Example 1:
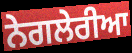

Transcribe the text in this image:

ਨੇਗਲੇਰੀਆ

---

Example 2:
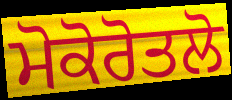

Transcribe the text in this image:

ਮੋਕੋਰੋਤਲੋ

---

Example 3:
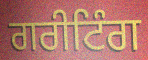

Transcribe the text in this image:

ਗਰੀਟਿੰਗ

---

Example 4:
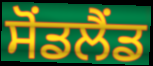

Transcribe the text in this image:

ਸੋਂਡਲੈਂਡ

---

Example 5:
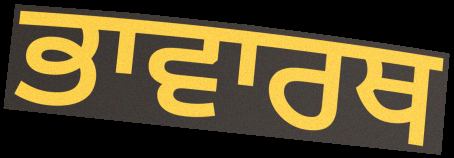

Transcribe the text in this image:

ਭਾਵਾਰਥ